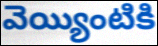
వెయ్యింటికి